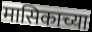
मासिकाच्या